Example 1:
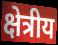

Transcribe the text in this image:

क्षेत्रीय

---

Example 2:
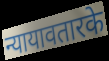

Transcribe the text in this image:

न्यायावतारके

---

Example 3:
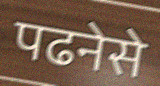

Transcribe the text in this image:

पढनेसे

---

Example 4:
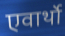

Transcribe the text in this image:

एवार्थो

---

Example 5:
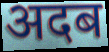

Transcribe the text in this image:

अदब